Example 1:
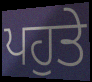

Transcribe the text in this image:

ਪਹੁਤੇ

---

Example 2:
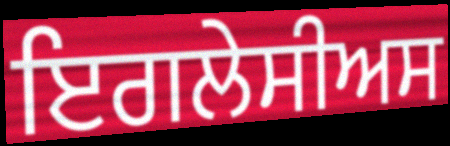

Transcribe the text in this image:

ਇਗਲੇਸੀਅਸ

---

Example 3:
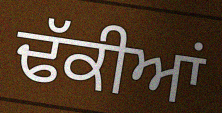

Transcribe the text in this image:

ਢੱਕੀਆਂ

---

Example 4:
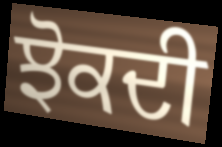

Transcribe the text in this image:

ਝੋਕਦੀ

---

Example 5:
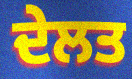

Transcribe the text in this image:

ਦੇਲਤ